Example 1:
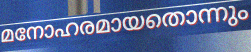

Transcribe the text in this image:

മനോഹരമായതൊന്നും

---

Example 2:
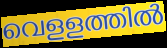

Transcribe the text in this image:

വെളളത്തിൽ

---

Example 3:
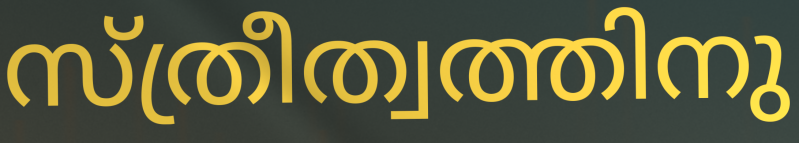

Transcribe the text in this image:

സ്ത്രീത്വത്തിനു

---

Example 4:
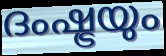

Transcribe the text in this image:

ദംഷ്ട്രയും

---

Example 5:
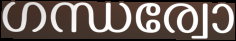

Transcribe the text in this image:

ഗന്ധര്വോ